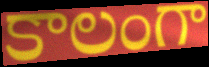
కాలంగా